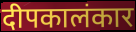
दीपकालंकार